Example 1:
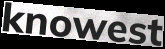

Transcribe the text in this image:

knowest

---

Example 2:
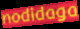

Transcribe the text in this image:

nodidaga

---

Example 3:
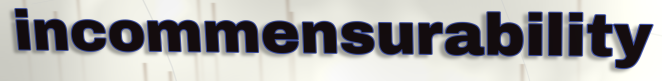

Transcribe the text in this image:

incommensurability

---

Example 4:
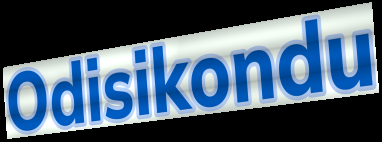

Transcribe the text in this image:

Odisikondu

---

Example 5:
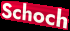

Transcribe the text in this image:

Schoch